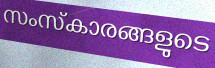
സംസ്‌കാരങ്ങളുടെ